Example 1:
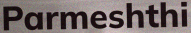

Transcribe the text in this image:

Parmeshthi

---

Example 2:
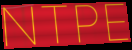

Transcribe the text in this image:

NTPE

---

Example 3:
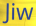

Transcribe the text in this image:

Jiw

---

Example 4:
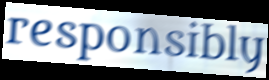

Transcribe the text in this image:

responsibly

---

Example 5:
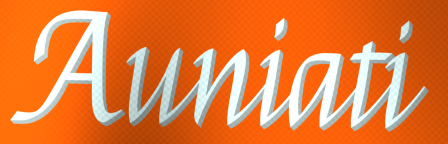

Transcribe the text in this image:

Auniati